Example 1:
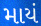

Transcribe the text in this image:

માયં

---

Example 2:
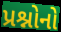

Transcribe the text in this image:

પ્રશ્નોનો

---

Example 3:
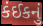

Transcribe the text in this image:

કંઈકનું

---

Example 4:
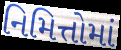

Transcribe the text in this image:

નિમિત્તોમાં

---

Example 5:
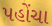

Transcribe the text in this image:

પહોંચા